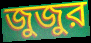
জুজুর